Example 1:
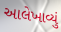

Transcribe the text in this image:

આલેખાવ્યું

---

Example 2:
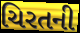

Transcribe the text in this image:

ચિરતની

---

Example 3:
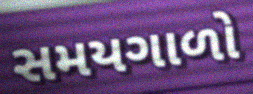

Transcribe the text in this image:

સમયગાળો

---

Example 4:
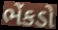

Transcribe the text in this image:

ભેંકડો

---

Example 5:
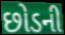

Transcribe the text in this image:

છોડની